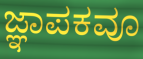
ಜ್ಞಾಪಕವೂ